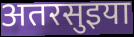
अतरसुइया